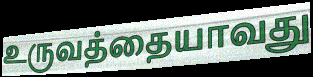
உருவத்தையாவது